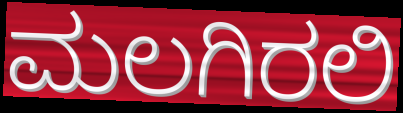
ಮಲಗಿರಲಿ